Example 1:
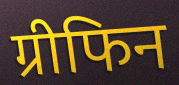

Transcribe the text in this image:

ग्रीफिन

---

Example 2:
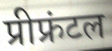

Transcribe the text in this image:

प्रीफ्रंटल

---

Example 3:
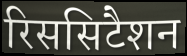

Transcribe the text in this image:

रिससिटैशन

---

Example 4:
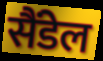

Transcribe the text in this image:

सैंडेल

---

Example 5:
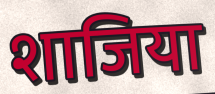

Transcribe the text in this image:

शाजिया